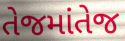
તેજમાંતેજ